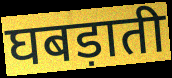
घबड़ाती